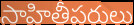
సాహితీపరులు